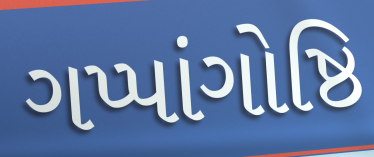
ગપ્પાંગોષ્ઠિ